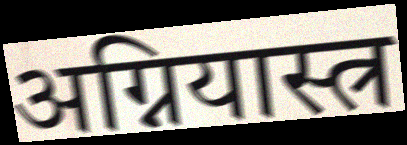
अग्नियास्त्र